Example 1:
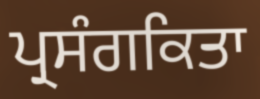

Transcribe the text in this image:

ਪ੍ਰਸੰਗਕਿਤਾ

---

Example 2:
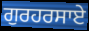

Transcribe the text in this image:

ਗੁਰਹਰਸਾਏ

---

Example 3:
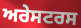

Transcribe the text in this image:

ਅਰੇਸਟਰਸ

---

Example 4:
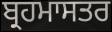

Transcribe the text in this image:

ਬ੍ਰਹਮਾਸਤਰ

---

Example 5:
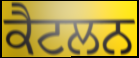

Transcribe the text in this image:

ਕੈਟਲਨ